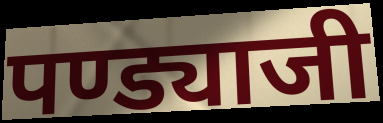
पण्ड्याजी